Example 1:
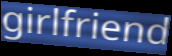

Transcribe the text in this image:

girlfriend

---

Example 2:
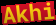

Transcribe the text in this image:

Akhi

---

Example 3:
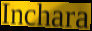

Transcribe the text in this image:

Inchara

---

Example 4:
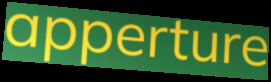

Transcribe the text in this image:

apperture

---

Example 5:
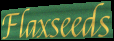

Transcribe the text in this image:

Flaxseeds